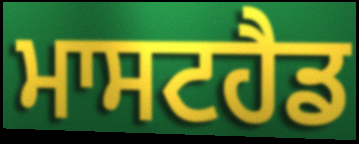
ਮਾਸਟਹੈਡ